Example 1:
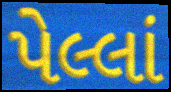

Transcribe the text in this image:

પેલ્લાં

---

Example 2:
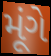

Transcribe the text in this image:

મૂંગે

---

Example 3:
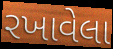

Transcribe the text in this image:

રખાવેલા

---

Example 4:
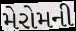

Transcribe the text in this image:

મેરોમની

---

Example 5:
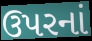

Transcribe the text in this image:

ઉપરનાં